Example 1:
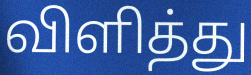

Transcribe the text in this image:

விளித்து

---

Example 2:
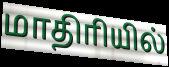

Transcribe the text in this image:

மாதிரியில்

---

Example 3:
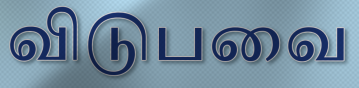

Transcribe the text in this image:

விடுபவை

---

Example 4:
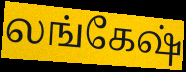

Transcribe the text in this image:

லங்கேஷ்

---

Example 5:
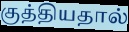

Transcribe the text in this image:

குத்தியதால்